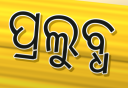
ପ୍ରଲୁବ୍ଧ